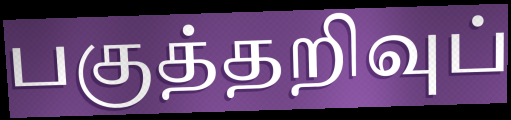
பகுத்தறிவுப்